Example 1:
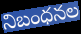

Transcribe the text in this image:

నిబంధనల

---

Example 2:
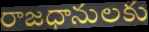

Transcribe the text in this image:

రాజధానులకు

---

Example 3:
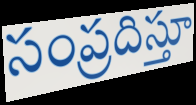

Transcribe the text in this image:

సంప్రదిస్తూ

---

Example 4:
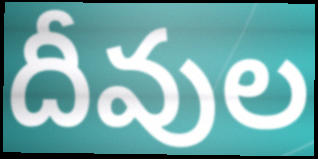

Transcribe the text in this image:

దీవుల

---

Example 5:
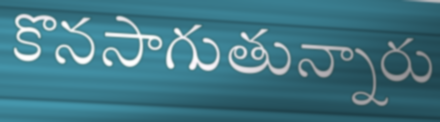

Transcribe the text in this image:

కొనసాగుతున్నారు